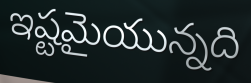
ఇష్టమైయున్నది